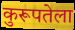
कुरूपतेला